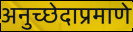
अनुच्छेदाप्रमाणे